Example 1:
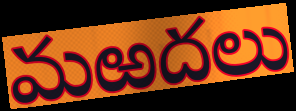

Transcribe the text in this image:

మఱదలు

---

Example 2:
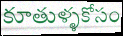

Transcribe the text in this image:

కూతుళ్ళకోసం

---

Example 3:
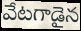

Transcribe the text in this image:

వేటగాడైన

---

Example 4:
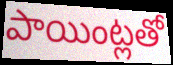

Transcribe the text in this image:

పాయింట్లతో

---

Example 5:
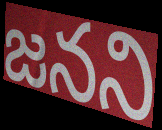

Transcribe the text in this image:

జనని